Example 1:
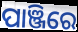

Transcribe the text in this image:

ପାଞ୍ଜିରେ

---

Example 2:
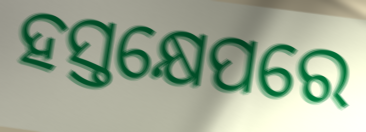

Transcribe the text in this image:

ହସ୍ତକ୍ଷେପରେ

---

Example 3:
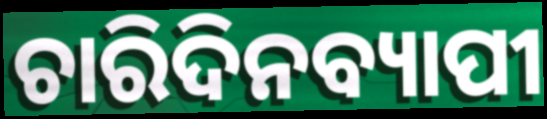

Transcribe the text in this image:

ଚାରିଦିନବ୍ୟାପୀ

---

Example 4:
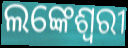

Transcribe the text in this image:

ଲଙ୍କେଶ୍ଵରୀ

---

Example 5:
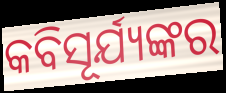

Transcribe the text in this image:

କବିସୂର୍ଯ୍ୟଙ୍କର